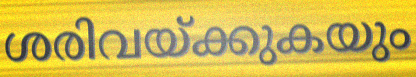
ശരിവയ്ക്കുകയും